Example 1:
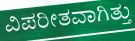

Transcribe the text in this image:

ವಿಪರೀತವಾಗಿತ್ತು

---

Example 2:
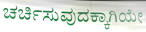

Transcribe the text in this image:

ಚರ್ಚಿಸುವುದಕ್ಕಾಗಿಯೇ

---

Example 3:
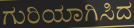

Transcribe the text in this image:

ಗುರಿಯಾಗಿಸಿದ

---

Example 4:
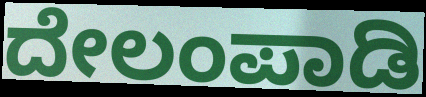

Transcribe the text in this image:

ದೇಲಂಪಾಡಿ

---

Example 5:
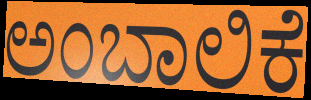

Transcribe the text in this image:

ಅಂಬಾಲಿಕೆ